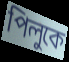
পিলুকে